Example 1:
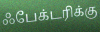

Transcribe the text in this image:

ஃபேக்டரிக்கு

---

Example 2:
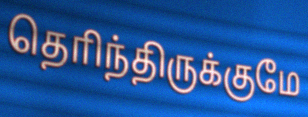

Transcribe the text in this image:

தெரிந்திருக்குமே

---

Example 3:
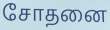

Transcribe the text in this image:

சோதனை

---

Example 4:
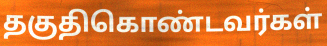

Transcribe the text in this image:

தகுதிகொண்டவர்கள்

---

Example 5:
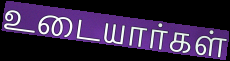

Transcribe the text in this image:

உடையார்கள்